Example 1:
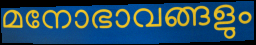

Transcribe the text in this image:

മനോഭാവങ്ങളും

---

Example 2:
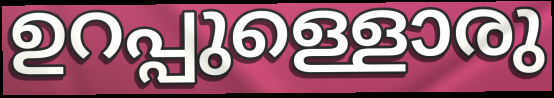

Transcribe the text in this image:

ഉറപ്പുള്ളൊരു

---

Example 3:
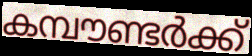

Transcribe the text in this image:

കമ്പൗണ്ടർക്ക്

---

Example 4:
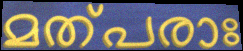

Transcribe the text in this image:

മത്പരാഃ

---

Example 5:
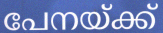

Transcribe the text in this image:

പേനയ്ക്ക്